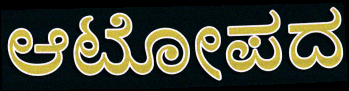
ಆಟೋಪದ